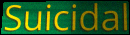
Suicidal